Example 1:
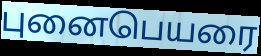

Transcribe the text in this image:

புனைபெயரை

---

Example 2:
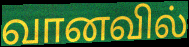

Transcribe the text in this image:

வானவில்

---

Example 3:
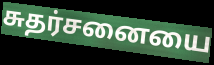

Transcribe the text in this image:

சுதர்சனையை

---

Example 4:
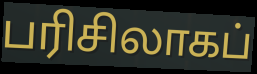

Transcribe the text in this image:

பரிசிலாகப்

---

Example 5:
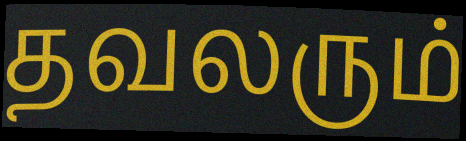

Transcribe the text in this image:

தவலரும்